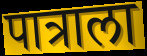
पात्राला